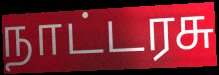
நாட்டரசு